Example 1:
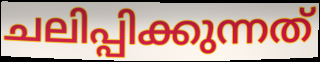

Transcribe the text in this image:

ചലിപ്പിക്കുന്നത്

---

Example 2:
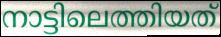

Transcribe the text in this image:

നാട്ടിലെത്തിയത്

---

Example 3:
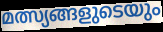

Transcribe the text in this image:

മത്സ്യങ്ങളുടെയും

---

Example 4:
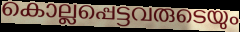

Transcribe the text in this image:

കൊല്ലപ്പെട്ടവരുടെയും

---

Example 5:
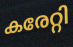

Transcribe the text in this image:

കരേറ്റി